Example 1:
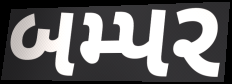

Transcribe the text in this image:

બમ્પર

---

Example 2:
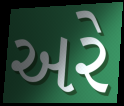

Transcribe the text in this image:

અરે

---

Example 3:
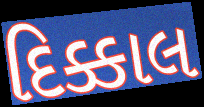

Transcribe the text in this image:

દિક્કાલ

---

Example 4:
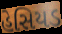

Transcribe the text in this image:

હેસિયડ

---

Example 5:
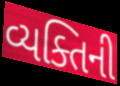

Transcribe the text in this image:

વ્યક્તિની